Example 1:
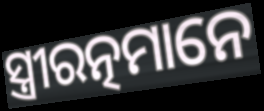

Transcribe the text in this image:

ସ୍ତ୍ରୀରତ୍ନମାନେ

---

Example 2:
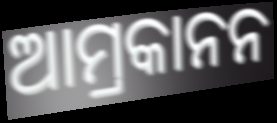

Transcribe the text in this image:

ଆମ୍ରକାନନ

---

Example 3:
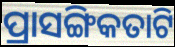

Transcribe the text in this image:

ପ୍ରାସଙ୍ଗିକତାଟି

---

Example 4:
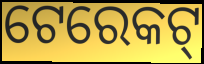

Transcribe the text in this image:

ଟେରେକଟ୍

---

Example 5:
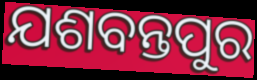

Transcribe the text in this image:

ଯଶବନ୍ତପୁର